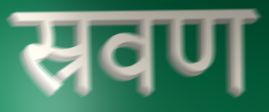
स्रवण